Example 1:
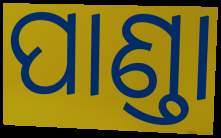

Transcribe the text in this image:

ପାଣ୍ଡା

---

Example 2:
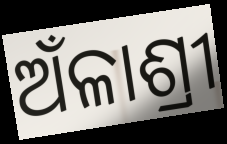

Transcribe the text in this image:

ଅଁଳାଶ୍ରୀ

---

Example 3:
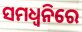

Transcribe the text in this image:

ସମଧ୍ୱନିରେ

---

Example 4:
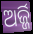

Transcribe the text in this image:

ଅର୍ଜ୍ଜି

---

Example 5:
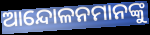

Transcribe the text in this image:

ଆନ୍ଦୋଳନମାନଙ୍କୁ